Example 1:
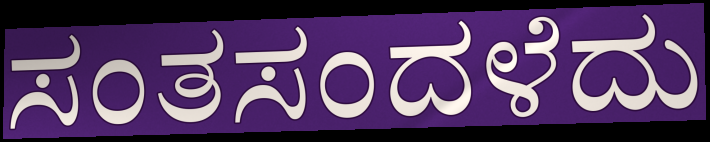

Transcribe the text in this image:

ಸಂತಸಂದಳೆದು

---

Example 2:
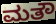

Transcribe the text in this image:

ಮತೌ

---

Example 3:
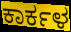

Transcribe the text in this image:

ಕಾರ್ಕಳ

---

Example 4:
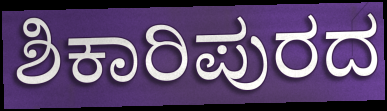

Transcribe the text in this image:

ಶಿಕಾರಿಪುರದ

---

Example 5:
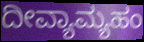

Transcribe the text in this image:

ದೀವ್ಯಾಮ್ಯಹಂ